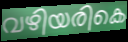
വഴിയരികെ